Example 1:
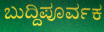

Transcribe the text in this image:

ಬುದ್ದಿಪೂರ್ವಕ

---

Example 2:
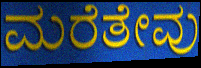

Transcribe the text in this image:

ಮರೆತೇವು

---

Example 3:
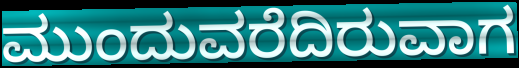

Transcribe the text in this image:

ಮುಂದುವರೆದಿರುವಾಗ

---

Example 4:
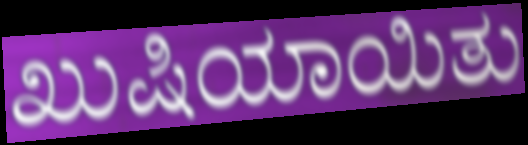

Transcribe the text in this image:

ಖುಷಿಯಾಯಿತು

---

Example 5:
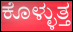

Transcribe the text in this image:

ಕೊಳ್ಳುತ್ತ